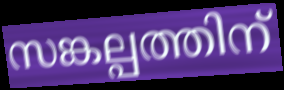
സങ്കല്പത്തിന്